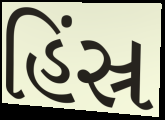
હિંસ્ર